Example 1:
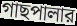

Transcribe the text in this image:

গাছপালার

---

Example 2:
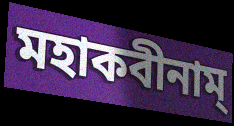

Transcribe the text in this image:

মহাকবীনাম্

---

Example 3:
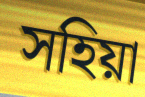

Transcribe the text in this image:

সহিয়া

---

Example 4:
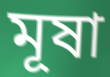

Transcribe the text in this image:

মূষা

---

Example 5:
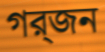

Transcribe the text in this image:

গর্‍জন